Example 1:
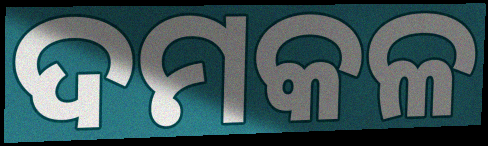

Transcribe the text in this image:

ଦମକଳ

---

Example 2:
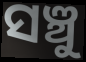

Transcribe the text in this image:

ସଞ୍ଚୁ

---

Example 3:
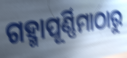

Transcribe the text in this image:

ଗହ୍ମାପୂର୍ଣ୍ଣିମାଠାରୁ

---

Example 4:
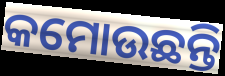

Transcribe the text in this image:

କମୋଉଛନ୍ତି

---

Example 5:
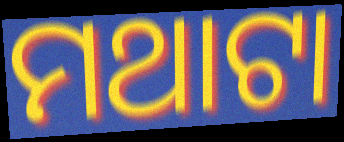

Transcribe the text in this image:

ମଥାଟା